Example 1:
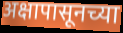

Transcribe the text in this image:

अक्षापासूनच्या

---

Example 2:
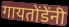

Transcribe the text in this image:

गायतोंडेंनी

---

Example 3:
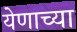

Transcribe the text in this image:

येणाच्या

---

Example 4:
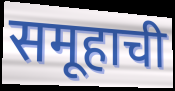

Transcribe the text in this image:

समूहाची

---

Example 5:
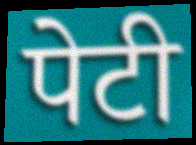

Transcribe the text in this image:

पेटी